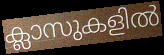
ക്ലാസുകളിൽ